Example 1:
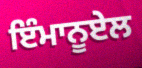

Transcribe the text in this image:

ਇੰਮਾਨੂਏਲ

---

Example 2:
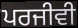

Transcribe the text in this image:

ਪਰਜੀਵੀ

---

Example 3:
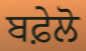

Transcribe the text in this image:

ਬਫ਼ੇਲੋ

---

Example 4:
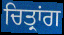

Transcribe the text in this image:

ਚਿਤ੍ਰਾਂਗ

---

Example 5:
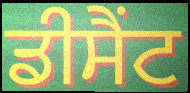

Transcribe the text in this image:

ਡੀਸੈਂਟ